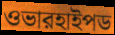
ওভারহাইপড